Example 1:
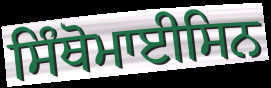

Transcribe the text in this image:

ਸਿੰਥੋਮਾਈਸਿਨ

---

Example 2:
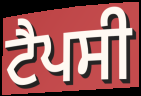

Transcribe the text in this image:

ਟੈਪਸੀ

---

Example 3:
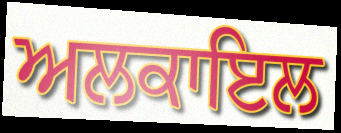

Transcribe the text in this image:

ਅਲਕਾਇਲ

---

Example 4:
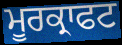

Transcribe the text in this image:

ਮੂਰਕ੍ਰਾਫਟ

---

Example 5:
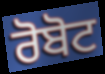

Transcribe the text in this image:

ਰੋਬੋਟ